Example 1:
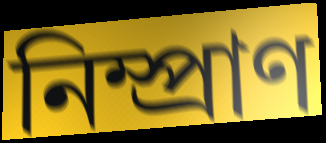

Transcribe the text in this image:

নিম্প্রাণ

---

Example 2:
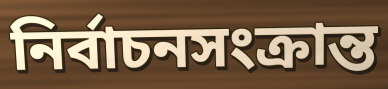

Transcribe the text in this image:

নির্বাচনসংক্রান্ত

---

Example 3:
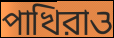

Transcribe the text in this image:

পাখিরাও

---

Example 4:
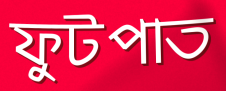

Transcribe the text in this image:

ফুটপাত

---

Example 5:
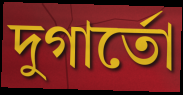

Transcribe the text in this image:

দুগার্তো